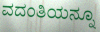
ವದಂತಿಯನ್ನೂ